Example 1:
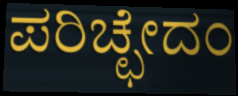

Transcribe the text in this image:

ಪರಿಚ್ಛೇದಂ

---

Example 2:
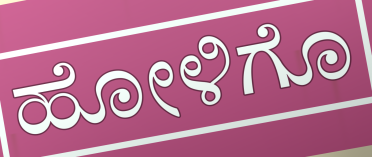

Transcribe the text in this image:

ಹೋಳಿಗೊ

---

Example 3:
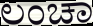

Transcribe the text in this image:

ಲಂಚಾ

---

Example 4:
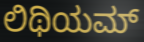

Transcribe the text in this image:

ಲಿಥಿಯಮ್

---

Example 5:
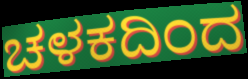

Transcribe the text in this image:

ಚಳಕದಿಂದ